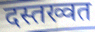
दस्तख्वत